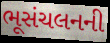
ભૂસંચલનની